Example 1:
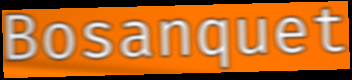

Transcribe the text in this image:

Bosanquet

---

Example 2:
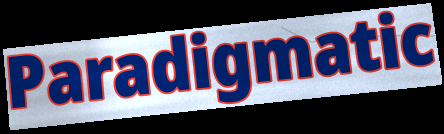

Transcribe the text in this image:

Paradigmatic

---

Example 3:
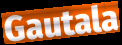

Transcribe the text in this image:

Gautala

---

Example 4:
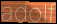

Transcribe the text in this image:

adolf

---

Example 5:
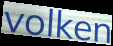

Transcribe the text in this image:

volken